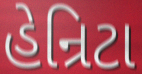
હેન્રિટા